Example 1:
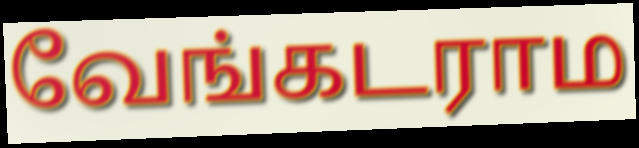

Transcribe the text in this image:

வேங்கடராம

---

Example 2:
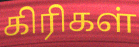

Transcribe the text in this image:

கிரிகள்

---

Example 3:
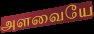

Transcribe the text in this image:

அளவையே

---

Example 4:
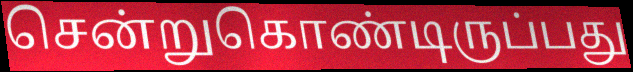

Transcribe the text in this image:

சென்றுகொண்டிருப்பது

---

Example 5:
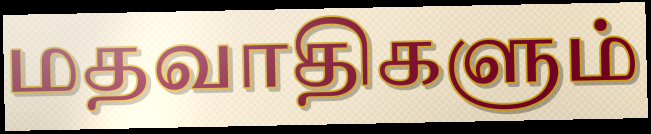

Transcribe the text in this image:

மதவாதிகளும்